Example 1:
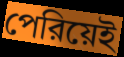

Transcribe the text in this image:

পেরিয়েই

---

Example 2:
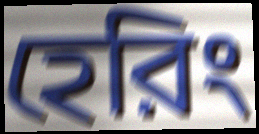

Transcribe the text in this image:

হেরিং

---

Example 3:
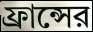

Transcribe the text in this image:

ফ্রান্সের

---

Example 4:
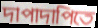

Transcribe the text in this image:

দাপাদাপিতে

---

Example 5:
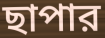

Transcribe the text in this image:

ছাপার